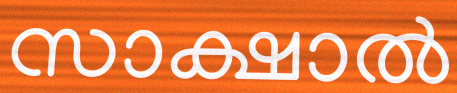
സാക്ഷാൽ